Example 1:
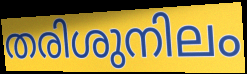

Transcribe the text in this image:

തരിശുനിലം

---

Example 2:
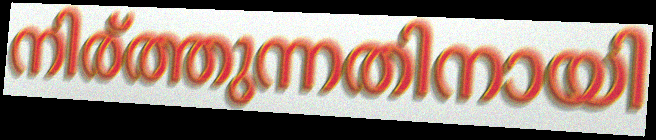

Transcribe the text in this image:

നിര്ത്തുന്നതിനായി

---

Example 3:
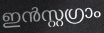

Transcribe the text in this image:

ഇൻസ്റ്റഗ്രാം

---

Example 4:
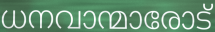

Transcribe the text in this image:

ധനവാന്മാരോട്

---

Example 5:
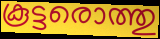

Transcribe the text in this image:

കൂട്ടരൊത്തു